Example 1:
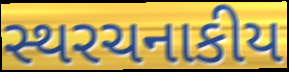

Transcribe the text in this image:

સ્થરચનાકીય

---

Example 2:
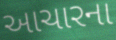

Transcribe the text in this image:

આચારના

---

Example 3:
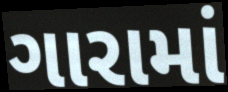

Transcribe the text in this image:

ગારામાં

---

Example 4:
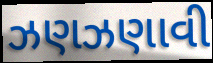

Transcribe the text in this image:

ઝણઝણાવી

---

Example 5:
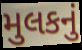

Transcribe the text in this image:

મુલકનું